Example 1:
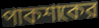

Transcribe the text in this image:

পাকশাকের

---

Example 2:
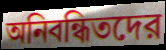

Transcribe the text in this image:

অনিবন্ধিতদের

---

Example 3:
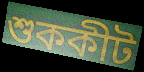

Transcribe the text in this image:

শুককীট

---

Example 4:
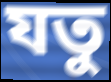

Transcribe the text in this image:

যতু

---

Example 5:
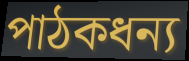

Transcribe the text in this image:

পাঠকধন্য